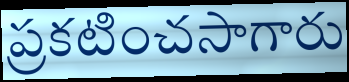
ప్రకటించసాగారు